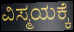
ವಿಸ್ಮಯಕ್ಕೆ